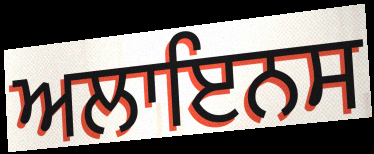
ਅਲਾਇਨਸ